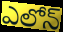
ఎలోన్